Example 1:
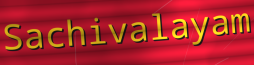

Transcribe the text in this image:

Sachivalayam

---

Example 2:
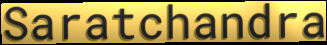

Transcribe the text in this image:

Saratchandra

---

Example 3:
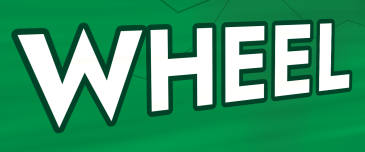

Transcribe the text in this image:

WHEEL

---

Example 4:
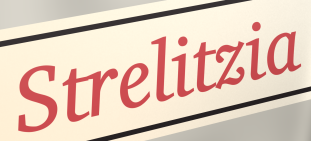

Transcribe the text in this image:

Strelitzia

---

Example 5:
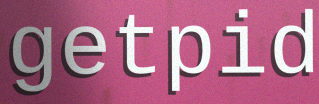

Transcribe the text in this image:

getpid